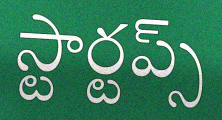
స్టార్టప్స్